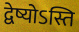
द्वेष्योऽस्ति